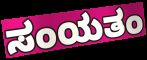
ಸಂಯತಂ